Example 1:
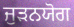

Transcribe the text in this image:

ਜੁੜਨਯੋਗ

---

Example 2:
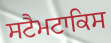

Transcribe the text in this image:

ਸਟੈਮਟਾਕਿਸ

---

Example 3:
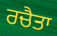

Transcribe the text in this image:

ਰਚੈਤਾ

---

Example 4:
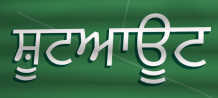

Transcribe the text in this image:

ਸ਼ੂਟਆਊਟ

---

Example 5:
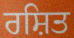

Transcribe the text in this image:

ਰਸ਼ਿਤ